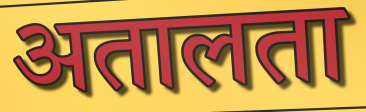
अतालता